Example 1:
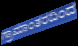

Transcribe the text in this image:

ಗ್ರಾಮಾಂತರದಿಂದ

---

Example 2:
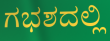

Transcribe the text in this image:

ಗಭಶದಲ್ಲಿ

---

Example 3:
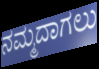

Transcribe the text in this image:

ನಮ್ಮದಾಗಲು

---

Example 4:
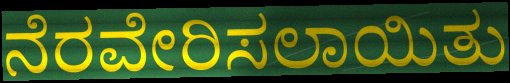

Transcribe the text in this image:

ನೆರವೇರಿಸಲಾಯಿತು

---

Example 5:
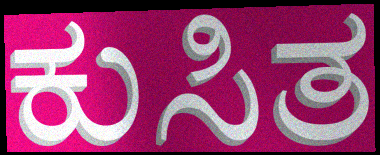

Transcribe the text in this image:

ಕುಸಿತ